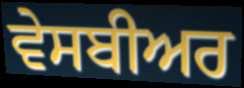
ਵੇਸਬੀਅਰ